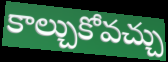
కాల్చుకోవచ్చు